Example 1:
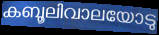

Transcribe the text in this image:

കബൂലിവാലയോടു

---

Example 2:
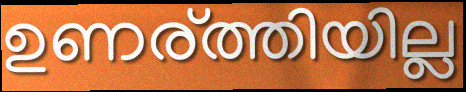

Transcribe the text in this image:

ഉണര്ത്തിയില്ല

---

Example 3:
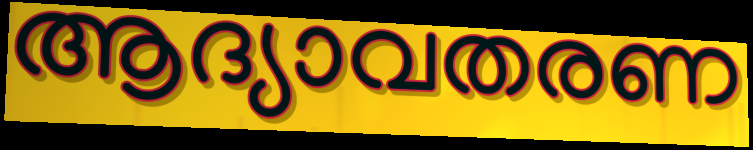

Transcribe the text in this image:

ആദ്യാവതരണ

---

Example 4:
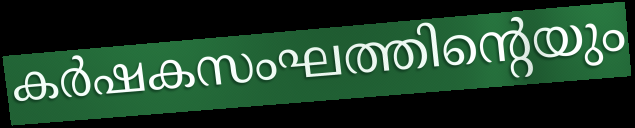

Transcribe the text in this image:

കർഷകസംഘത്തിന്റെയും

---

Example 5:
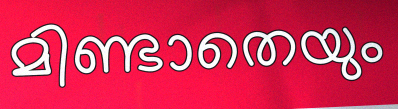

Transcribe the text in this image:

മിണ്ടാതെയും